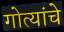
गोत्यांचे